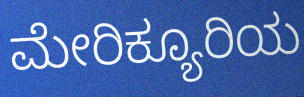
ಮೇರಿಕ್ಯೂರಿಯ